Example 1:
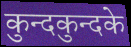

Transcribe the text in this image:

कुन्दकुन्दके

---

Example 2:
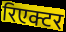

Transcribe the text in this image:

रिएक्टर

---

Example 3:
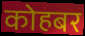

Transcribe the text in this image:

कोहबर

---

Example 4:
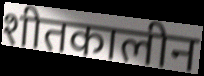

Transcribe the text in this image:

शीतकालीन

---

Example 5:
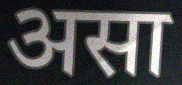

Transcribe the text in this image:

असा